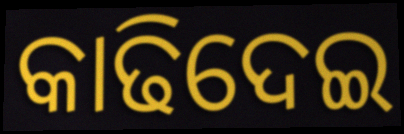
କାଢିଦେଇ